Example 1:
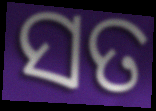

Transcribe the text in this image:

ସତ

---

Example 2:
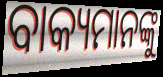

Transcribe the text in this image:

ବାକ୍ୟମାନଙ୍କୁ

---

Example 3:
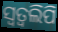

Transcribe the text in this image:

ସ୍ୱତ୍ୱଲିପି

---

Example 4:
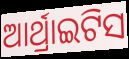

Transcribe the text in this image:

ଆର୍ଥ୍ରାଇଟିସ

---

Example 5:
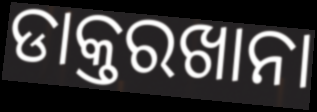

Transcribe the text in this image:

ଡାକ୍ତରଖାନା